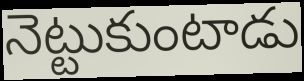
నెట్టుకుంటాడు